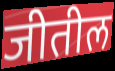
जीतील